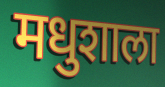
मधुशाला